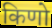
किणो